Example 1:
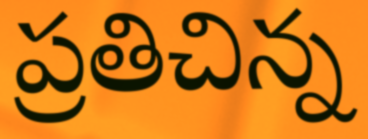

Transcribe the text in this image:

ప్రతిచిన్న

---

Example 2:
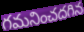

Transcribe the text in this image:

గమనించదగిన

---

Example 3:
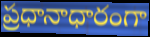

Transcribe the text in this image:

ప్రధానాధారంగా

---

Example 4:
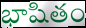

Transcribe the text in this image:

భాషితం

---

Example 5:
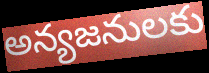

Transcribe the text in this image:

అన్యజనులకు